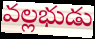
వల్లభుడు